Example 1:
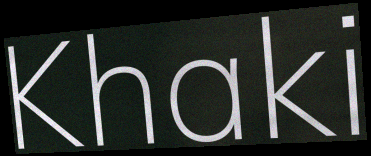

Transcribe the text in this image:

Khaki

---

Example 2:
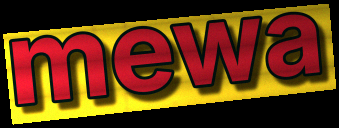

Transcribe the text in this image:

mewa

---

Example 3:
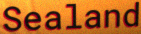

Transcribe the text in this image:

Sealand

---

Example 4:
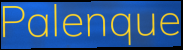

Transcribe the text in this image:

Palenque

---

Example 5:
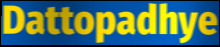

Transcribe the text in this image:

Dattopadhye